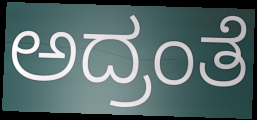
ಅದ್ರಂತೆ